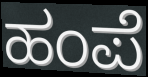
ಹಂಪೆ